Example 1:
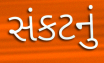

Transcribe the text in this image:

સંકટનું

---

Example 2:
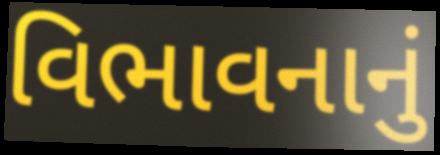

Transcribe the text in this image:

વિભાવનાનું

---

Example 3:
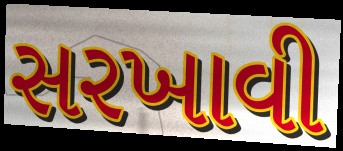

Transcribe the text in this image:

સરખાવી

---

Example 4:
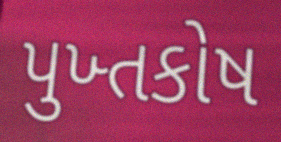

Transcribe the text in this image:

પુખ્તકોષ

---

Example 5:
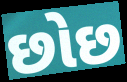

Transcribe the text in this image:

છોછ